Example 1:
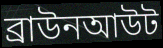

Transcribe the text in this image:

ব্রাউনআউট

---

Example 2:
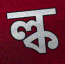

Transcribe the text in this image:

ল্ক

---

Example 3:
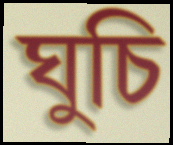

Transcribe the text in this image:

ঘুচি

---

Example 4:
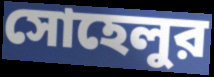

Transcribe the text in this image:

সোহেলুর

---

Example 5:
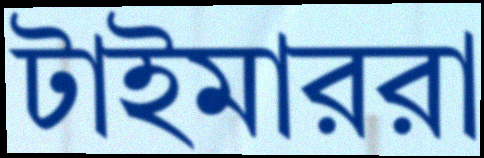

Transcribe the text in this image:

টাইমাররা